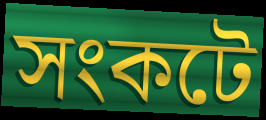
সংকটে